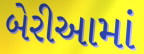
બેરીઆમાં